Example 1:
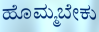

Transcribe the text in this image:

ಹೊಮ್ಮಬೇಕು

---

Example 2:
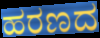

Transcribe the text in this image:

ಹರಣದ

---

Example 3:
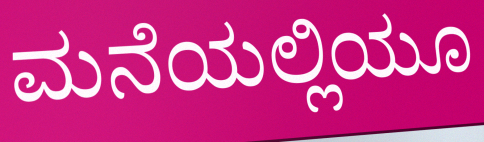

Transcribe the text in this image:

ಮನೆಯಲ್ಲಿಯೂ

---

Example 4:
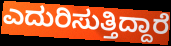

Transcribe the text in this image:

ಎದುರಿಸುತ್ತಿದ್ದಾರೆ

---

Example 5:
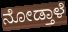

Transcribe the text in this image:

ನೋಡ್ತಾಳೆ